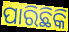
ପାରିଛିକି